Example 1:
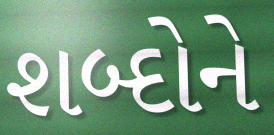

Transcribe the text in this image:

શબ્દોને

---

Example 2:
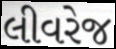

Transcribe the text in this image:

લીવરેજ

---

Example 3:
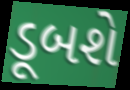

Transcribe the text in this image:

ડૂબશે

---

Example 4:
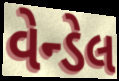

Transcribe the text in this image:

વેન્ડેલ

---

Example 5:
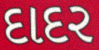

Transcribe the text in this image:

દાદર